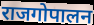
राजगोपालन